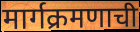
मार्गक्रमणाची